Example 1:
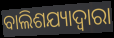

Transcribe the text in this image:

ବାଲିଶଯ୍ୟାଦ୍ଵାରା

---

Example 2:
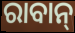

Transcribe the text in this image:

ରାବାନ୍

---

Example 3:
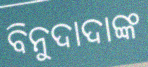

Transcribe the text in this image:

ବିନୁଦାଦାଙ୍କ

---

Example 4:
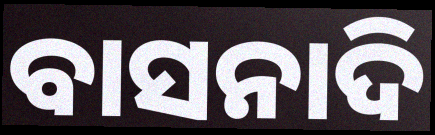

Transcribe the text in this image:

ବାସନାଦି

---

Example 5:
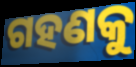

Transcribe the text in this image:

ଗହଣକୁ